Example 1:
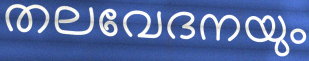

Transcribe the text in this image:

തലവേദനയും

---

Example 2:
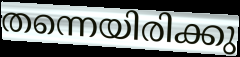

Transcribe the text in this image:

തന്നെയിരിക്കു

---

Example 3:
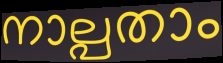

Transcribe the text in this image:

നാല്പതാം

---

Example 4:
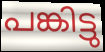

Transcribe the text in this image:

പങ്കിട്ടു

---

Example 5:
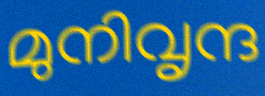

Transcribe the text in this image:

മുനിവൃന്ദ